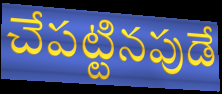
చేపట్టినపుడే